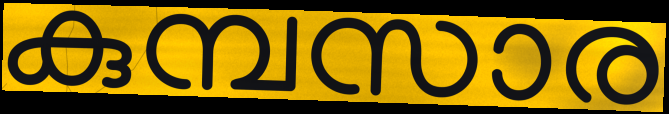
കുമ്പസാര